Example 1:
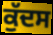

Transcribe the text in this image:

ਕੁੱਦਸ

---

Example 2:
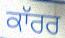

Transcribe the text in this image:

ਕਾੱਰਰ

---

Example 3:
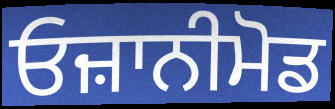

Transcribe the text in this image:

ਓਜ਼ਾਨੀਮੋਡ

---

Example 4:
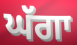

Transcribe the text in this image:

ਘੱਗਾ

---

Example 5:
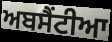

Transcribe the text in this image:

ਅਬਸੈਂਟੀਆ